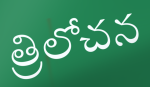
త్రిలోచన